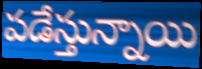
పడేస్తున్నాయి